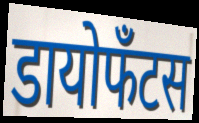
डायोफँटस